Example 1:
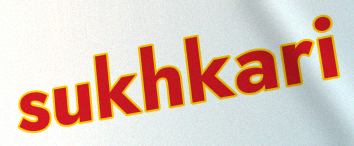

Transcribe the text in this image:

sukhkari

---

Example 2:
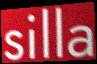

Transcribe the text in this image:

silla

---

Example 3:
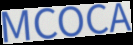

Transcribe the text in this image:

MCOCA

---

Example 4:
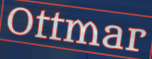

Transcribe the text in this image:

Ottmar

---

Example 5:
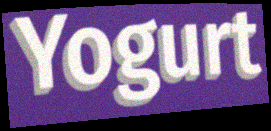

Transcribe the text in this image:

Yogurt